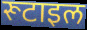
रूटाइल